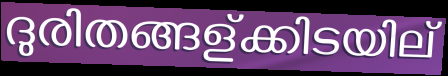
ദുരിതങ്ങള്ക്കിടയില്